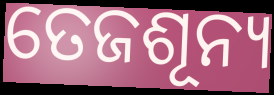
ତେଜଶୂନ୍ୟ